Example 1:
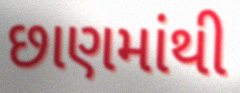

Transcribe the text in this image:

છાણમાંથી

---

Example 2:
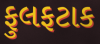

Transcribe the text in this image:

ફુલફટાક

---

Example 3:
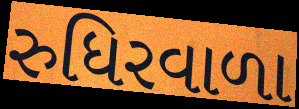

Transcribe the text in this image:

રુધિરવાળા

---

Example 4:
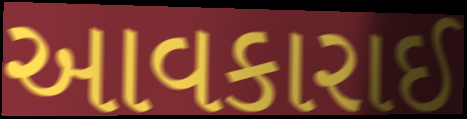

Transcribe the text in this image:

આવકારાઈ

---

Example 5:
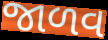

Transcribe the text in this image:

જાળવ